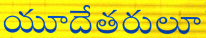
యూదేతరులూ